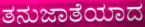
ತನುಜಾತೆಯಾದ